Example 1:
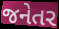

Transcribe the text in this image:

જનેતર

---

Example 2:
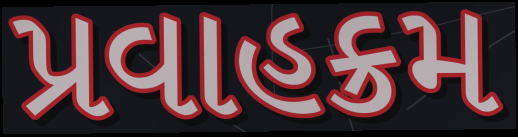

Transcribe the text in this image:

પ્રવાહક્રમ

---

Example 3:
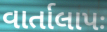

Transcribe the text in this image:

વાર્તાલાપઃ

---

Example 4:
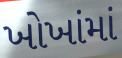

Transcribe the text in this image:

ખોખાંમાં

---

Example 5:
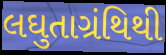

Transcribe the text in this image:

લઘુતાગ્રંથિથી